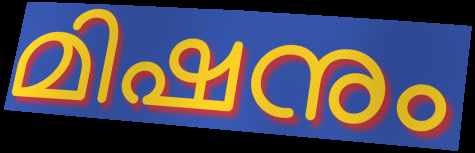
മിഷനും